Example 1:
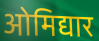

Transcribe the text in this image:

ओमिद्यार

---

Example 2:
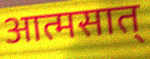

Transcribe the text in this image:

आत्मसात्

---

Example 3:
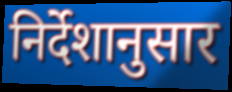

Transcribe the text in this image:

निर्देशानुसार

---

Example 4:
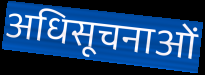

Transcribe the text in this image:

अधिसूचनाओं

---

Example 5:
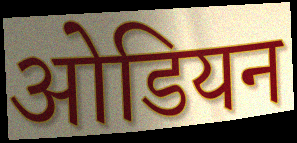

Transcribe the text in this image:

ओडियन